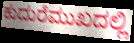
ಕುದುರೆಮುಖದಲ್ಲಿ